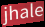
jhale